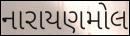
નારાયણમોલ